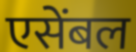
एसेंबल